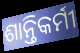
ଶାନ୍ତିକର୍ମୀ